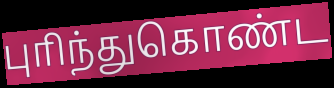
புரிந்துகொண்ட